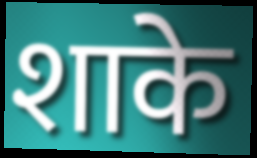
शाके